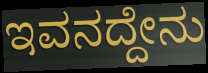
ಇವನದ್ದೇನು